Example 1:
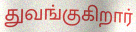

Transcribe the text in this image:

துவங்குகிறார்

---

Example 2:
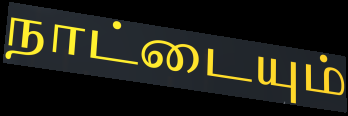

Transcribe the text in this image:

நாட்டையும்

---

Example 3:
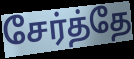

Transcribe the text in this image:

சேர்த்தே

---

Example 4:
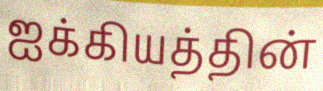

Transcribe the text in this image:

ஐக்கியத்தின்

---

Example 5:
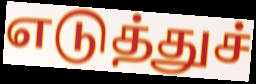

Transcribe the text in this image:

எடுத்துச்